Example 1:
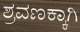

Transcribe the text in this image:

ಶ್ರವಣಕ್ಕಾಗಿ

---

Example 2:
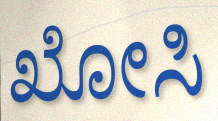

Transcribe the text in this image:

ಖೋಸಿ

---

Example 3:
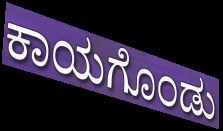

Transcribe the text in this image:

ಕಾಯಗೊಂಡು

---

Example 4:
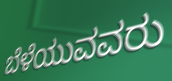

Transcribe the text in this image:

ಬೆಳೆಯುವವರು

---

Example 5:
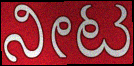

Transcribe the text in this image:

ನೀಟ